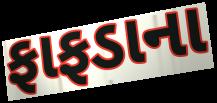
ફાફડાના